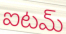
ఐటమ్